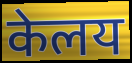
केलय